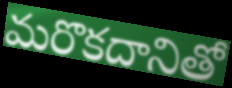
మరొకదానితో